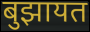
बुझायत